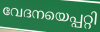
വേദനയെപ്പറ്റി